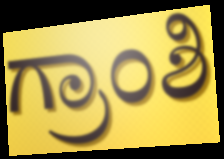
ಗ್ರಾಂಶಿ